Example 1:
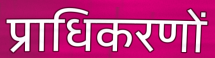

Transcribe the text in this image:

प्राधिकरणों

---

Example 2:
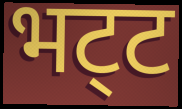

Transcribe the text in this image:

भट्‌ट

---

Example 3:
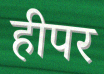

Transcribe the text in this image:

हीपर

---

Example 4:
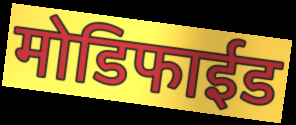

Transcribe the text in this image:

मोडिफाईड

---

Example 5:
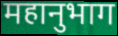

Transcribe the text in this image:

महानुभाग